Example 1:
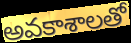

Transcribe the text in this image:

అవకాశాలతో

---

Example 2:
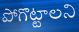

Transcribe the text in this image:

పోగొట్టాలని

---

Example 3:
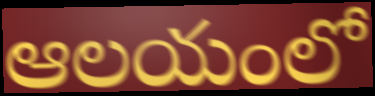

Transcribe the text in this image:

ఆలయంలో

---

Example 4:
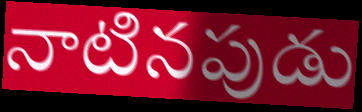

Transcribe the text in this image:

నాటినపుడు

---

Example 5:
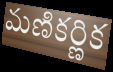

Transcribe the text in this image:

మణికర్ణిక